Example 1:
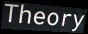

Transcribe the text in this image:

Theory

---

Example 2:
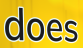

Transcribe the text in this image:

does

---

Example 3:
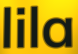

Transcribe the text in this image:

lila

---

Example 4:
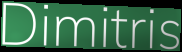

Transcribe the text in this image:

Dimitris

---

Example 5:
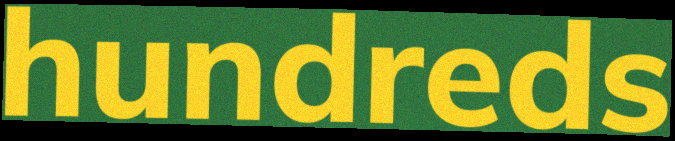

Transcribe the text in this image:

hundreds